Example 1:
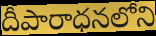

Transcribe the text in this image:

దీపారాధనలోని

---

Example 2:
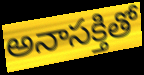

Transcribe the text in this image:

అనాసక్తితో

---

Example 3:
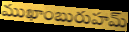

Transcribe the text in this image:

ముఖాంబురుహమ్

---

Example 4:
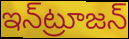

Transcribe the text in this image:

ఇన్‌ట్రూజన్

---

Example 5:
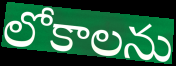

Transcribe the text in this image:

లోకాలను